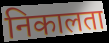
निकालता